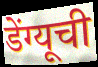
डेंग्यूची